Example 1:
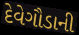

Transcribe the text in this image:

દેવેગૌડાની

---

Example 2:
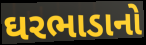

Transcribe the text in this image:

ઘરભાડાનો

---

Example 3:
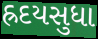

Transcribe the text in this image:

હ્રદયસુધા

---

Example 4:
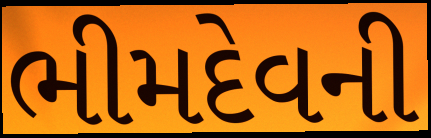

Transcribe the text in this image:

ભીમદેવની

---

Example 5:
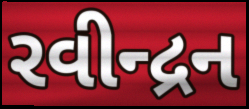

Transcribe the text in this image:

રવીન્દ્રન